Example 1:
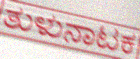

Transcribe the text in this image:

ತುಳುನಾಟಕ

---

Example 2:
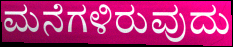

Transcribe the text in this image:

ಮನೆಗಳಿರುವುದು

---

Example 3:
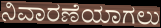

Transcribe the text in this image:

ನಿವಾರಣೆಯಾಗಲು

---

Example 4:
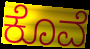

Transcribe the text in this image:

ಕೊವೆ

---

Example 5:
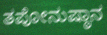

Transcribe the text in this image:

ತಪೋನುಷ್ಠಾನ